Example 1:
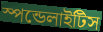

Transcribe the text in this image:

স্পন্ডেলাইটিস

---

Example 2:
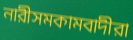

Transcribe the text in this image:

নারীসমকামবাদীরা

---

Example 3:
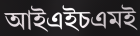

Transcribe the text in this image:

আইএইচএমই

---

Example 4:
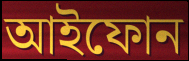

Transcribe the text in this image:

আইফোন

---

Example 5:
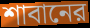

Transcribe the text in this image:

শাবানের